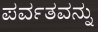
ಪರ್ವತವನ್ನು